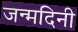
जन्मदिनी